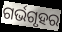
ଗର୍ଭଗୃହର